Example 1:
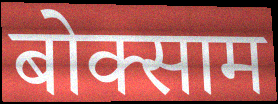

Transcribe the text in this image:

बोक्साम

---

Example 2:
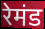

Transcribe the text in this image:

रेमंड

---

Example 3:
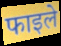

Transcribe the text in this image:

फाइले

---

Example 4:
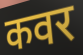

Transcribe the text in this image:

कवर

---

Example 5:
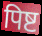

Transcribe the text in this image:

पिष्ट